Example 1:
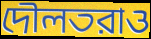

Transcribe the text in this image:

দৌলতরাও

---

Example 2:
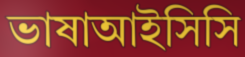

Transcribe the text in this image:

ভাষাআইসিসি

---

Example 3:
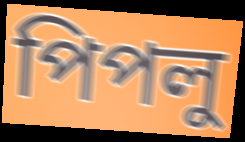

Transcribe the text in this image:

পিপলু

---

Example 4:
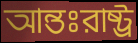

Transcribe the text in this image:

আন্তঃরাষ্ট্র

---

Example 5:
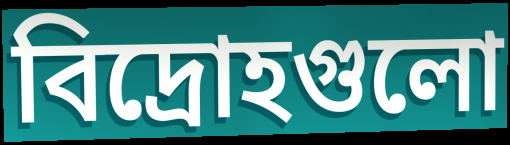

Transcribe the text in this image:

বিদ্রোহগুলো